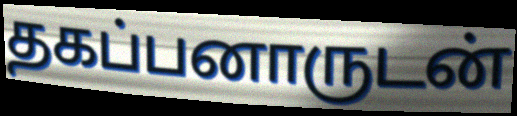
தகப்பனாருடன்